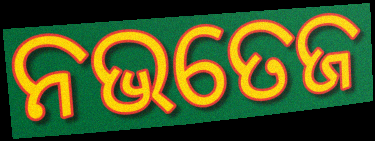
ନଭତେଜ